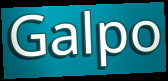
Galpo